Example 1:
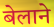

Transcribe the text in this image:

बेलाने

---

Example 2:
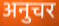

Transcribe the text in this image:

अनुचर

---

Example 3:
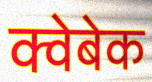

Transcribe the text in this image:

क्वेबेक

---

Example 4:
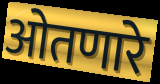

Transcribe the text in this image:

ओतणारे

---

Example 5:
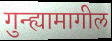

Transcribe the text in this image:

गुन्ह्यामागील